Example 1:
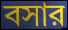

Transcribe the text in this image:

বসার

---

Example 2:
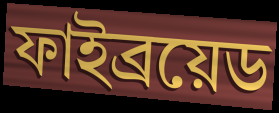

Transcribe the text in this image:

ফাইব্রয়েড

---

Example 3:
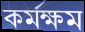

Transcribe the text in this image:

কর্মক্ষম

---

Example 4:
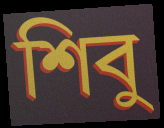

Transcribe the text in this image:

শিবু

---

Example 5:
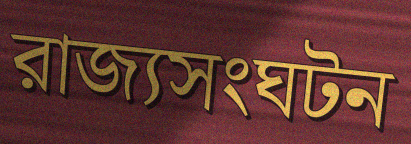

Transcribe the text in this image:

রাজ্যসংঘটন